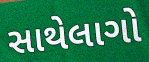
સાથેલાગો